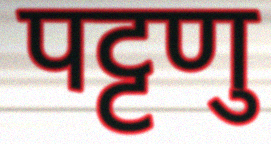
पट्टणु